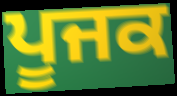
ਪੂਜਕ